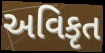
અવિકૃત